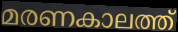
മരണകാലത്ത്